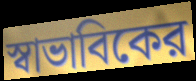
স্বাভাবিকের